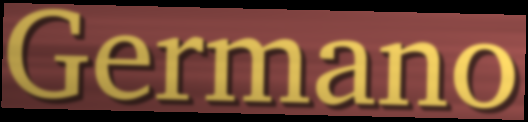
Germano